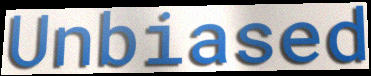
Unbiased